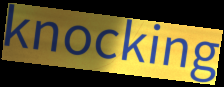
knocking